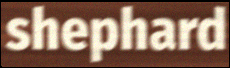
shephard